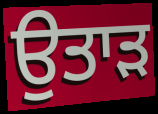
ਉਤਾਡ਼